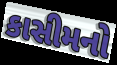
કાસીમનો